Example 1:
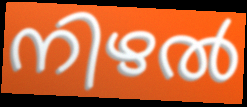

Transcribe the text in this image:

നിഴൽ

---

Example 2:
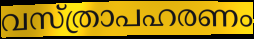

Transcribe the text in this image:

വസ്ത്രാപഹരണം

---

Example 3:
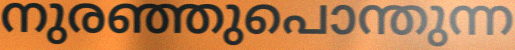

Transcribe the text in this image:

നുരഞ്ഞുപൊന്തുന്ന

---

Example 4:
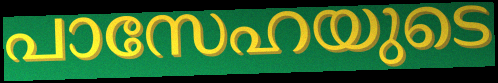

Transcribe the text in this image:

പാസേഹയുടെ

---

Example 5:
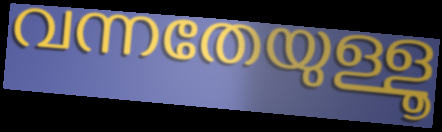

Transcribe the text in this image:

വന്നതേയുള്ളൂ